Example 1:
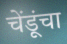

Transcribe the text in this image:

चेंडूंचा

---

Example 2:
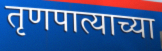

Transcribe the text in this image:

तृणपात्याच्या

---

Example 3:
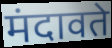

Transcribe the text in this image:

मंदावते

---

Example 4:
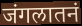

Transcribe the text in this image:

जंगलातनं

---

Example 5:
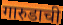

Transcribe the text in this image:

गारुडाची